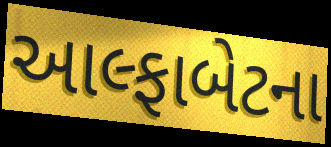
આલ્ફાબેટના